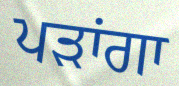
ਪੜਾਂਗਾ